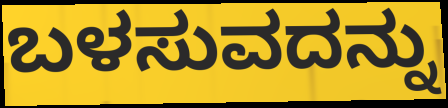
ಬಳಸುವದನ್ನು